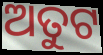
ଅତୁଟ